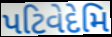
પટિવેદેમિ